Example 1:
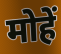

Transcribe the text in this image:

मोहें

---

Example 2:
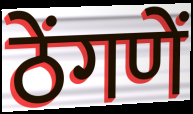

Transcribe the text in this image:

ठेंगणें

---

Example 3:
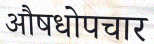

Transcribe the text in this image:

औषधोपचार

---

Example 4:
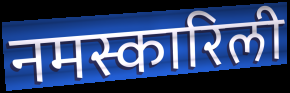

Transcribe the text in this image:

नमस्कारिली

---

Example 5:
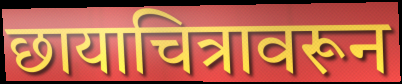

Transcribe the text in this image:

छायाचित्रावरून